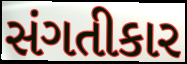
સંગતીકાર